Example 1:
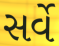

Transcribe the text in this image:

સર્વે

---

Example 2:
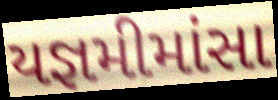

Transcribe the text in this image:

યજ્ઞમીમાંસા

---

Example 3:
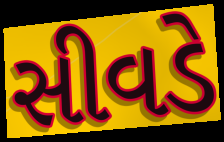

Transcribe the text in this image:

સીવડે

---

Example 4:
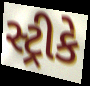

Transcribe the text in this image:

સ્ટ્રીકે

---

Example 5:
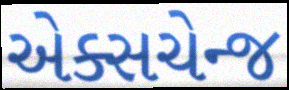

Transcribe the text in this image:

એક્સચેન્જ